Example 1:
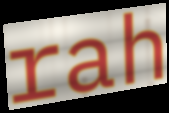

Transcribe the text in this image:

rah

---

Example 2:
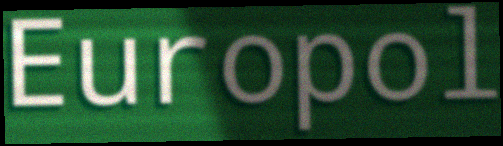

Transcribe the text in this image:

Europol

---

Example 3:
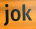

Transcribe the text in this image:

jok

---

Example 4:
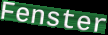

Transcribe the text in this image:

Fenster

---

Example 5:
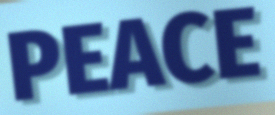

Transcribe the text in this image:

PEACE